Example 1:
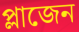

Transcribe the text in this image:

প্লাজেন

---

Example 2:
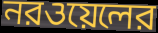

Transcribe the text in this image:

নরওয়েলের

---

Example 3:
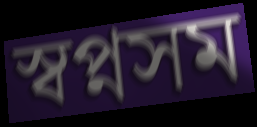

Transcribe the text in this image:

স্বপ্নসম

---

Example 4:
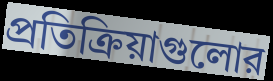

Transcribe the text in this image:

প্রতিক্রিয়াগুলোর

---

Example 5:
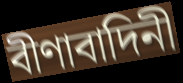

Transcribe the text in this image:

বীণাবাদিনী